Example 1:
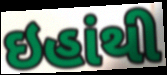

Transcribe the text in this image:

ઇહાંથી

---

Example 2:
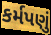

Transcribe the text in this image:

કર્મપણું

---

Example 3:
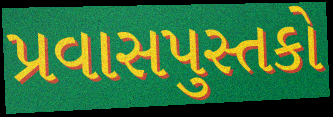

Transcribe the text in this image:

પ્રવાસપુસ્તકો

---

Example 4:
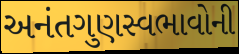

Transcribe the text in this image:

અનંતગુણસ્વભાવોની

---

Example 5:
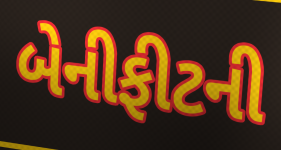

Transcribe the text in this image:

બેનીફીટની